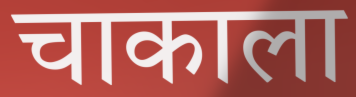
चाकाला